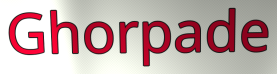
Ghorpade